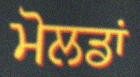
ਮੋਲਡਾਂ